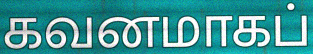
கவனமாகப்